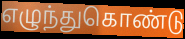
எழுந்துகொண்டு